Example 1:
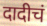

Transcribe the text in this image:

दादीचं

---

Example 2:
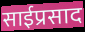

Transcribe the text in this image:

साईप्रसाद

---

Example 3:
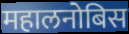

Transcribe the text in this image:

महालनोबिस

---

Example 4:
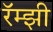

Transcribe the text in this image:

रॅम्झी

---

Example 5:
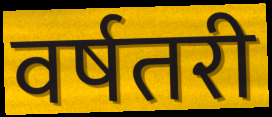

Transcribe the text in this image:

वर्षतरी